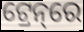
ଟ୍ରେନ୍‌ରେ